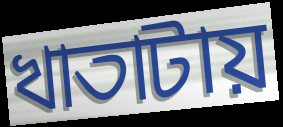
খাতাটায়